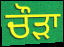
ਚੌੜਾ